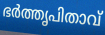
ഭർത്തൃപിതാവ്